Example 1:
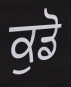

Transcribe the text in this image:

ਕੁਡੋ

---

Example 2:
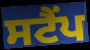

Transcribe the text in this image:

ਸਟੈਂਪ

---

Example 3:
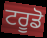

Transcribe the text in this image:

ਟਰੂਡੋ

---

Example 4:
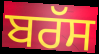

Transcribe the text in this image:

ਬਰੱਸ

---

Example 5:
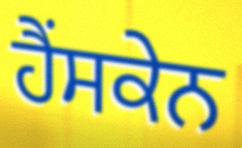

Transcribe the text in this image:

ਹੈਂਸਕੇਨ